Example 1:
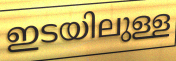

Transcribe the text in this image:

ഇടയിലുള്ള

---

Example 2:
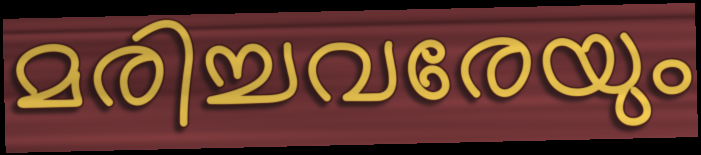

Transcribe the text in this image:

മരിച്ചവരേയും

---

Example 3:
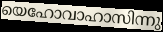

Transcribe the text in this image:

യെഹോവാഹാസിന്നു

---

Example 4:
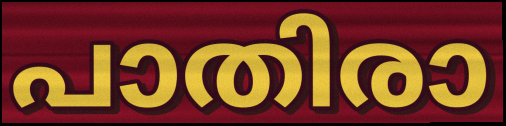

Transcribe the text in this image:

പാതിരാ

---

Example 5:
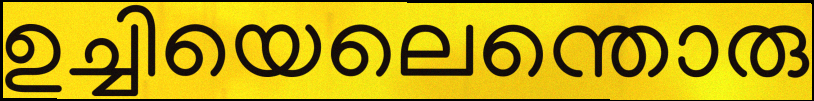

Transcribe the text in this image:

ഉച്ചിയെലെന്തൊരു